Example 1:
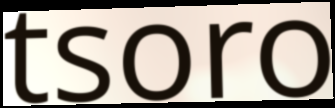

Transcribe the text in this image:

tsoro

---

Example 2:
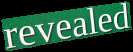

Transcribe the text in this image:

revealed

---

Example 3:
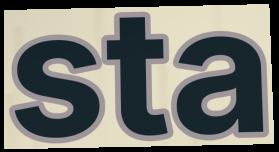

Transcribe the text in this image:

sta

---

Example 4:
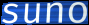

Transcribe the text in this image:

suno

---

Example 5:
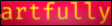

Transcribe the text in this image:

artfully